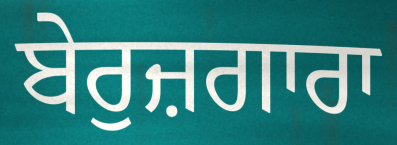
ਬੇਰੁਜ਼ਗਾਰਾ